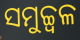
ସମୁଚ୍ଚ୍ୱଳ